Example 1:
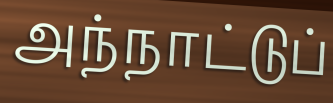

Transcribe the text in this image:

அந்நாட்டுப்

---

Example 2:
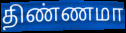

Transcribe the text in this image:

திண்ணமா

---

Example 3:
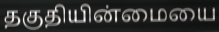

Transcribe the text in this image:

தகுதியின்மையை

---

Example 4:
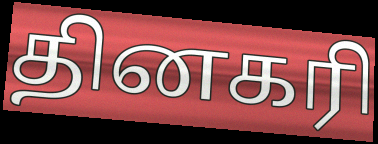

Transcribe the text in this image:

தினகரி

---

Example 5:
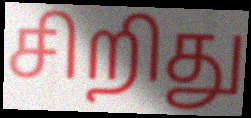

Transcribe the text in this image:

சிறிது